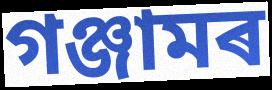
গঞ্জামৰ